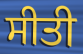
ਸੀਤੀ